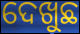
ଦେଖୁଛ